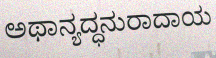
ಅಥಾನ್ಯದ್ಧನುರಾದಾಯ